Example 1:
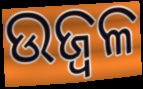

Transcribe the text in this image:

ଉଜ୍ବଳ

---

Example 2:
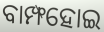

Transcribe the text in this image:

ବାମ୍ଫହୋଇ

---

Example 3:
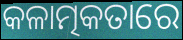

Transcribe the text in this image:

କଳାତ୍ମକତାରେ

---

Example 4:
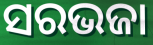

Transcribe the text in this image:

ସରଭଜା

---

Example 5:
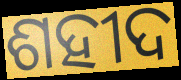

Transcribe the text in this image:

ଶହୀଦ